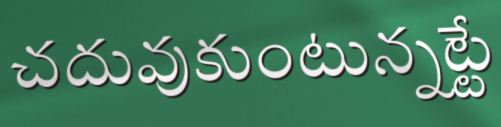
చదువుకుంటున్నట్టే